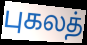
புகலத்